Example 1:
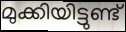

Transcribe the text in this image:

മുക്കിയിട്ടുണ്ട്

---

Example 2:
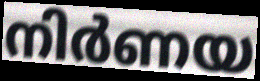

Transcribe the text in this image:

നിർണയ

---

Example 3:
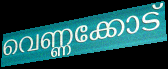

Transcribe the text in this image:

വെണ്ണക്കോട്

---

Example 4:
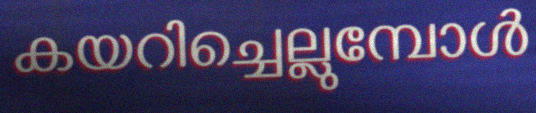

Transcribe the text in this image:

കയറിച്ചെല്ലുമ്പോൾ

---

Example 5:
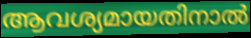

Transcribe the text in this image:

ആവശ്യമായതിനാൽ